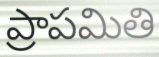
ప్రాపమితి